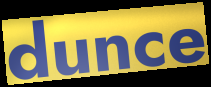
dunce